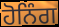
ਹੋਨਿੰਗ